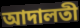
আদালতী